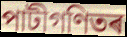
পাটীগণিতৰ